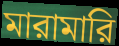
মারামারি